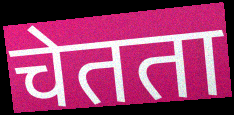
चेतता